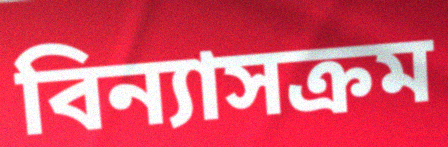
বিন্যাসক্রম